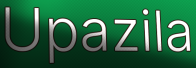
Upazila